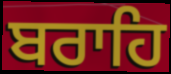
ਬਰਾਹਿ